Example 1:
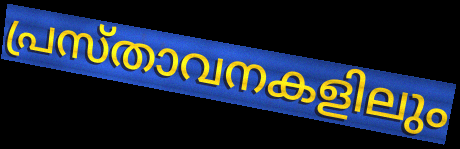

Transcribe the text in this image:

പ്രസ്താവനകളിലും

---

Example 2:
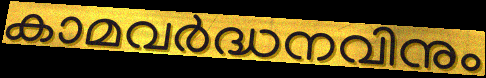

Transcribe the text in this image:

കാമവർദ്ധനവിനും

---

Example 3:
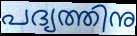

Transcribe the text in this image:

പദ്യത്തിനു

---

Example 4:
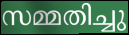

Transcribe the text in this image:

സമ്മതിച്ചു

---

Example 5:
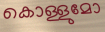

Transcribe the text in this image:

കൊള്ളുമോ